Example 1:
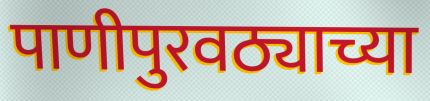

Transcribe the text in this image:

पाणीपुरवठ्याच्या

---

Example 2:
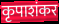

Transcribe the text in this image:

कृपाशंकर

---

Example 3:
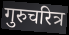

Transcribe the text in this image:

गुरुचरित्र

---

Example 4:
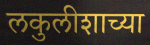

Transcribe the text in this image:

लकुलीशाच्या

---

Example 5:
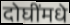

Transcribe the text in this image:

दोघींमधे